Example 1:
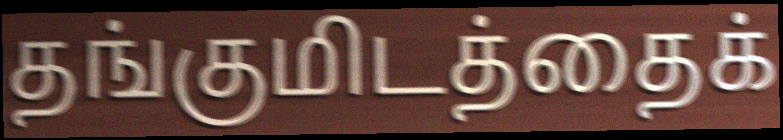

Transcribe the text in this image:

தங்குமிடத்தைக்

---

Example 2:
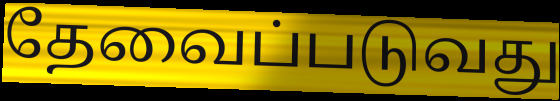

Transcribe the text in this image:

தேவைப்படுவது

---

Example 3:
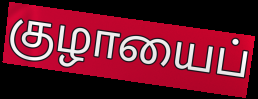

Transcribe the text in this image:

குழாயைப்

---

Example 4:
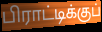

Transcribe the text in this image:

பிராட்டிக்குப்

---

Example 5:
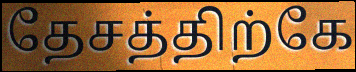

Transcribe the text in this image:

தேசத்திற்கே